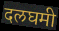
दलघमी